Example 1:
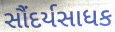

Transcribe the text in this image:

સૌંદર્યસાધક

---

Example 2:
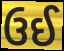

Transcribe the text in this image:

ઉઈ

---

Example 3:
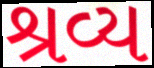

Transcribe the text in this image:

શ્રવ્ય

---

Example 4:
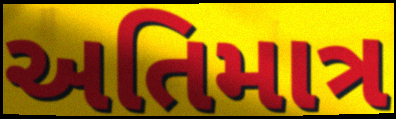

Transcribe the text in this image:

અતિમાત્ર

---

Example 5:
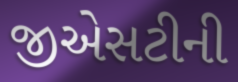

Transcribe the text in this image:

જીએસટીની